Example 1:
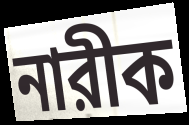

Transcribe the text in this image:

নারীক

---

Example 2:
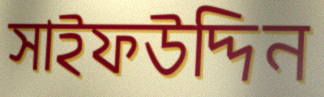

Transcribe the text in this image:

সাইফউদ্দিন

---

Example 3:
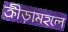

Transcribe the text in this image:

ক্রীড়ামহলে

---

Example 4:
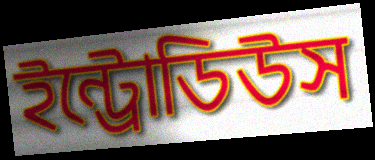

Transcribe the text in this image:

ইন্ট্রোডিউস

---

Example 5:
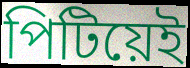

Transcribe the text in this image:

পিটিয়েই